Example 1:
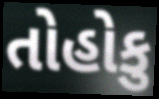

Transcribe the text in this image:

તોહોકુ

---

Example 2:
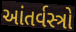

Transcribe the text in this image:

આંતર્વસ્ત્રો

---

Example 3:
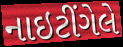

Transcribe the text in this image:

નાઇટીંગેલે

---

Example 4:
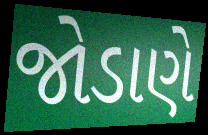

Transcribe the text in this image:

જોડાણે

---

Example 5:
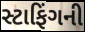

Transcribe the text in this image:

સ્ટાફિંગની